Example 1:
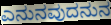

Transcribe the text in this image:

ಎನುನವುದನುನ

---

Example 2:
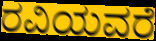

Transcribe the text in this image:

ರವಿಯವರೆ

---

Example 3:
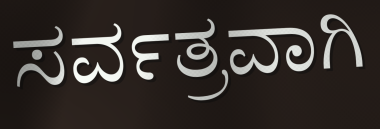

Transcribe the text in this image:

ಸರ್ವತ್ರವಾಗಿ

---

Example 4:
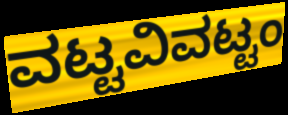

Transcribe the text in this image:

ವಟ್ಟವಿವಟ್ಟಂ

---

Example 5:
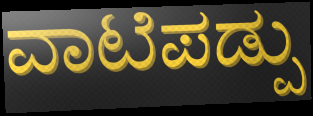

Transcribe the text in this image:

ವಾಟೆಪಡ್ಪು